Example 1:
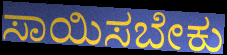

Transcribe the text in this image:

ಸಾಯಿಸಬೇಕು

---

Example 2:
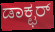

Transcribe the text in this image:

ಡಾಕ್ಟರ್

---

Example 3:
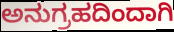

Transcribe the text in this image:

ಅನುಗ್ರಹದಿಂದಾಗಿ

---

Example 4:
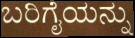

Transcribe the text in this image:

ಬರಿಗೈಯನ್ನು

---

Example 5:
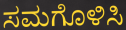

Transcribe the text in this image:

ಸಮಗೊಳಿಸಿ